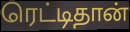
ரெட்டிதான்